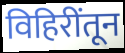
विहिरींतून